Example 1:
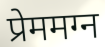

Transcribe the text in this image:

प्रेममग्न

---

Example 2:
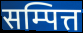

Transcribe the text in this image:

सम्पित्त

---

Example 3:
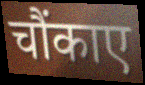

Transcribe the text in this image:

चौंकाए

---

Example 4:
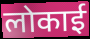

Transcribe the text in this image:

लोकाई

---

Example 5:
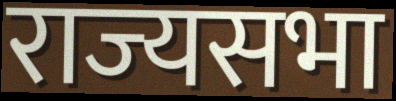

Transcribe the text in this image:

राज्‍यसभा